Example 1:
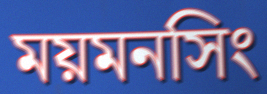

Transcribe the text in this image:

ময়মনসিং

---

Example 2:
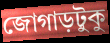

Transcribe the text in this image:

জোগাড়টুকু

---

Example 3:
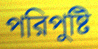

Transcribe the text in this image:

পরিপুষ্টি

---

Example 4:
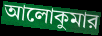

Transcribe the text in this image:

আলোকুমার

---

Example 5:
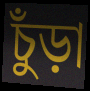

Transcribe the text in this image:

চুঁড়া